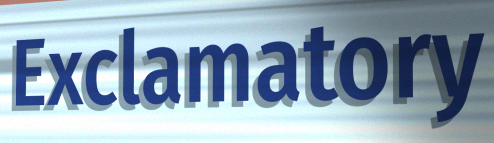
Exclamatory